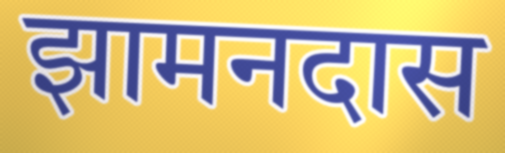
झामनदास